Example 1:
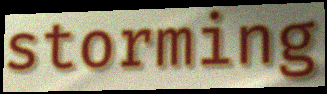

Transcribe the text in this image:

storming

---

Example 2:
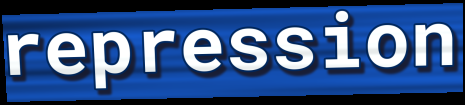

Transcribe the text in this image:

repression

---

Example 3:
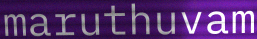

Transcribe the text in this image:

maruthuvam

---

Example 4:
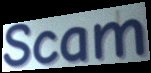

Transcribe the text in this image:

Scam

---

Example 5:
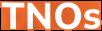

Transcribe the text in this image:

TNOs